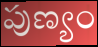
పుణ్యం